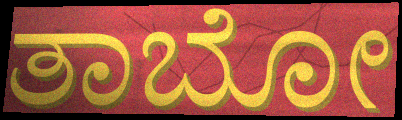
ತಾಬೋ